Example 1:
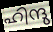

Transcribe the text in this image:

ഹിന്ദു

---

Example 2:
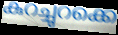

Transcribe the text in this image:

കുറച്ചുറക്കെ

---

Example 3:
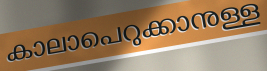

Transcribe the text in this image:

കാലാപെറുക്കാനുള്ള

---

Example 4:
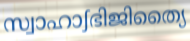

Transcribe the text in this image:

സ്വാഹാഽഭിജിത്യൈ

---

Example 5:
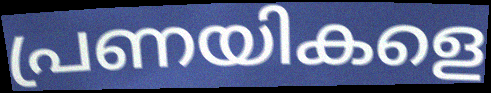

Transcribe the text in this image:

പ്രണയികളെ